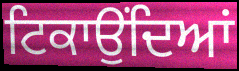
ਟਿਕਾਉਂਦਿਆਂ